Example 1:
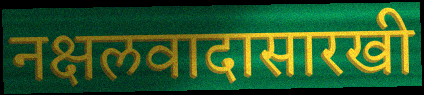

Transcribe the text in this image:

नक्षलवादासारखी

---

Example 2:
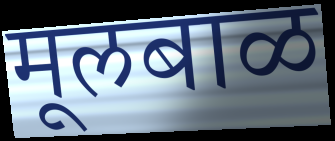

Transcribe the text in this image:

मूलबाळ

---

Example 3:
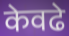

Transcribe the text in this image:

केवढे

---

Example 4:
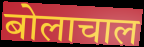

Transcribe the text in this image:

बोलाचाल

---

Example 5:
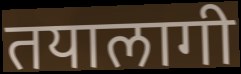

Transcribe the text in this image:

तयालागी